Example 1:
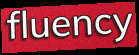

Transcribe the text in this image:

fluency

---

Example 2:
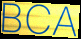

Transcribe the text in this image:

BCA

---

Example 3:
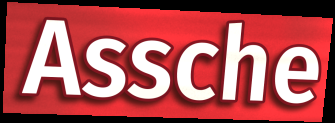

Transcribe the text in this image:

Assche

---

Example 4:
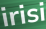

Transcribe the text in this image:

irisi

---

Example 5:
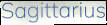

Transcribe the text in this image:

Sagittarius